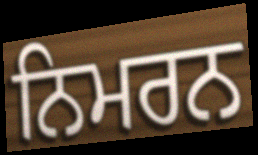
ਨਿਮਰਨ